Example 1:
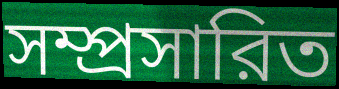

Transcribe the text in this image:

সম্প্রসারিত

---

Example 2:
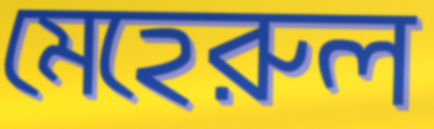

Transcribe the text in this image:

মেহেরুল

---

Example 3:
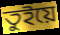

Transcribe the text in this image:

তুইয়ে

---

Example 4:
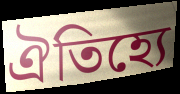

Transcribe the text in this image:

ঐতিহ্যে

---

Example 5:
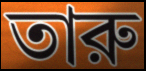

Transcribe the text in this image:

তারু